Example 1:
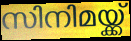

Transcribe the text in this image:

സിനിമയ്ക്ക്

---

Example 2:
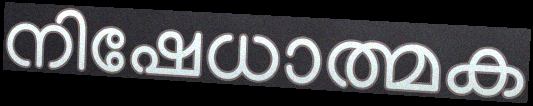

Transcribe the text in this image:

നിഷേധാത്മക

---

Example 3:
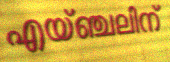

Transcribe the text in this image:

എയ്ഞ്ചലിന്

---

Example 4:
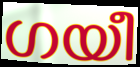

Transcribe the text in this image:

ഗയീ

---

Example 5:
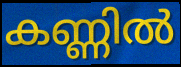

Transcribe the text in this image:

കണ്ണിൽ